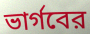
ভার্গবের